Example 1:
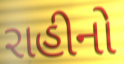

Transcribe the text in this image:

રાહીનો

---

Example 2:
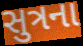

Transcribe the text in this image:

સુત્રના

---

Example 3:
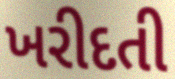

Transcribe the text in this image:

ખરીદતી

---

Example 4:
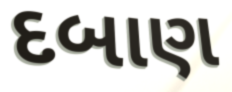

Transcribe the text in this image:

દબાણ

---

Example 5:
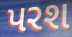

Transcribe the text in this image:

પરશ